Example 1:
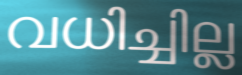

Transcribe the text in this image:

വധിച്ചില്ല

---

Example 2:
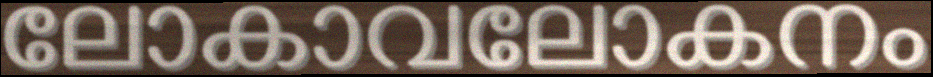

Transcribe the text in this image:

ലോകാവലോകനം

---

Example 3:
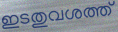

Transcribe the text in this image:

ഇടതുവശത്ത്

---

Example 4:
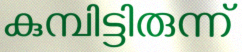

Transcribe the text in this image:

കുമ്പിട്ടിരുന്ന്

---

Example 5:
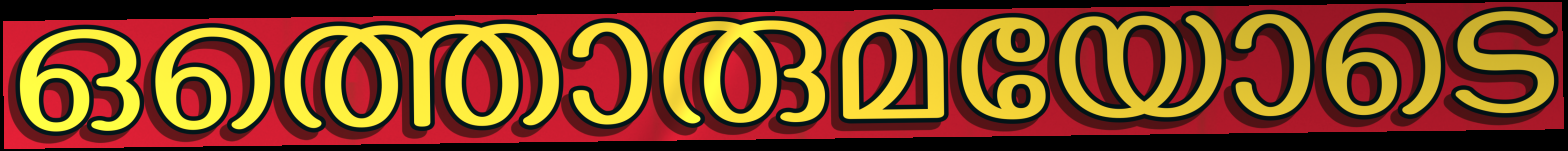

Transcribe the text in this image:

ഒത്തൊരുമയോടെ